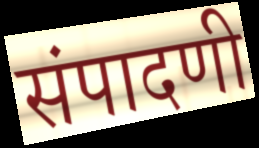
संपादणी